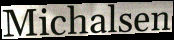
Michalsen